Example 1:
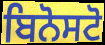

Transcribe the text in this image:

ਬਿਨੋਸਟੋ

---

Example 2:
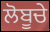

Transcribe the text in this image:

ਲੋਬੂਚੇ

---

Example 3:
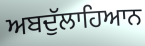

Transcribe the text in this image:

ਅਬਦੁੱਲਾਹਿਆਨ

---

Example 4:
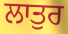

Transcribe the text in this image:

ਲਾਤੁਰ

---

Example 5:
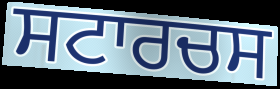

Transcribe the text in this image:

ਸਟਾਰਚਸ